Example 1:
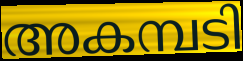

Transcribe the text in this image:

അകമ്പടി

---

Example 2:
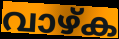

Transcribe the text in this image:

വാഴ്ക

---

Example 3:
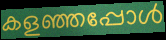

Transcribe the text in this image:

കളഞ്ഞപ്പോൾ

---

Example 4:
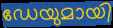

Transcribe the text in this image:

ഡേയുമായി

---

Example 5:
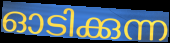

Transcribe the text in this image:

ഓടിക്കുന്ന